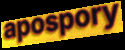
apospory